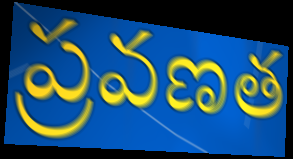
ప్రవణత